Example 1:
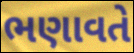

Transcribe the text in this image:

ભણાવતે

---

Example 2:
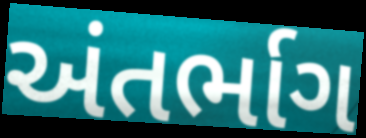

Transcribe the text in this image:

અંતર્ભાગ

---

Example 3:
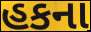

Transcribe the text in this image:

હકના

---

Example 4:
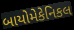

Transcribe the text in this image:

બાયોમેકેનિકલ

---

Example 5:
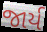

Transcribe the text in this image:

જાર્ય